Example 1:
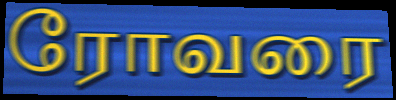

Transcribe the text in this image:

ரோவரை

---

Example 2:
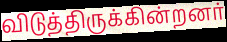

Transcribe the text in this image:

விடுத்திருக்கின்றனர்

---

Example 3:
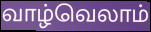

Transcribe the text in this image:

வாழ்வெலாம்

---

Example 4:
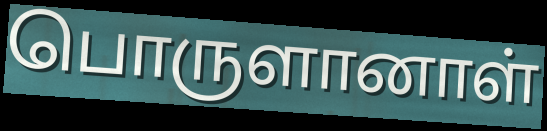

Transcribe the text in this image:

பொருளானாள்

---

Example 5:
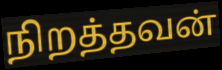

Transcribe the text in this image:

நிறத்தவன்